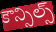
కౌన్సిల్స్